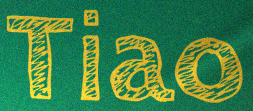
Tiao